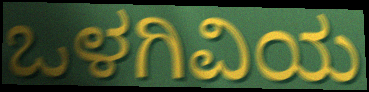
ಒಳಗಿವಿಯ